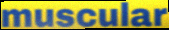
muscular